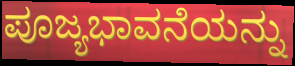
ಪೂಜ್ಯಭಾವನೆಯನ್ನು